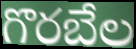
గొరబేల